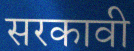
सरकावी